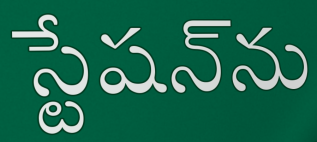
స్టేషన్‌ను